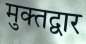
मुक्तद्वार